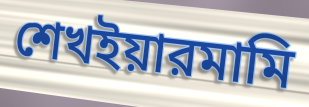
শেখইয়ারমামি